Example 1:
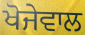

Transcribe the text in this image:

ਖੋਜੇਵਾਲ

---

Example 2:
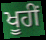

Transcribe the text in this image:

ਖੂਹੀਂ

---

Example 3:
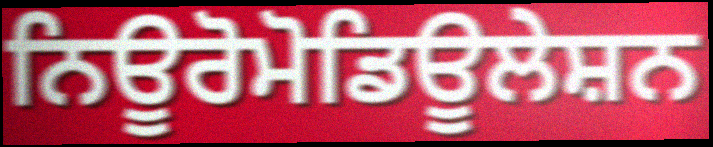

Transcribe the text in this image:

ਨਿਊਰੋਮੋਡਿਊਲੇਸ਼ਨ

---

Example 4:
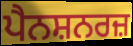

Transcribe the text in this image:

ਪੈਨਸ਼ਨਰਜ਼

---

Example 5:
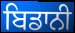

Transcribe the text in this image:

ਬਿਡਾਨੀ